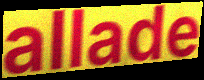
allade